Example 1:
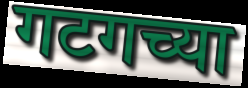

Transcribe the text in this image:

गटगच्या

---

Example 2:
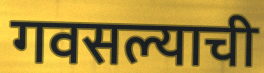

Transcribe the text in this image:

गवसल्याची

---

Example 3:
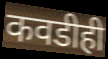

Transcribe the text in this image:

कवडीही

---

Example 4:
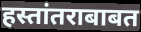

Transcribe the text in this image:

हस्तांतराबाबत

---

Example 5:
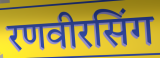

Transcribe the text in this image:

रणवीरसिंग